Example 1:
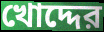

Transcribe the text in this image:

খোদ্দের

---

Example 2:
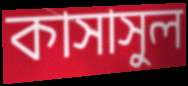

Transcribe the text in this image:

কাসাসুল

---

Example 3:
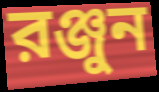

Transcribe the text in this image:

রঞ্জুন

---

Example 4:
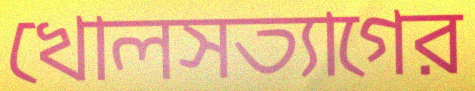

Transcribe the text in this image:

খোলসত্যাগের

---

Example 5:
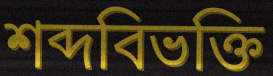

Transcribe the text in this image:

শব্দবিভক্তি